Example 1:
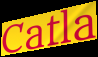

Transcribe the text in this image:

Catla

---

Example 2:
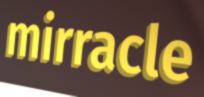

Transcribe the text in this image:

mirracle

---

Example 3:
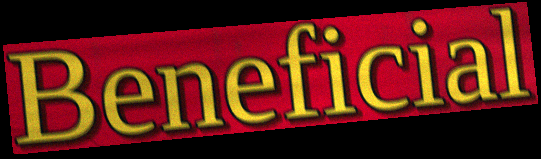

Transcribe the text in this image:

Beneficial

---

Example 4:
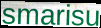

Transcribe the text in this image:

smarisu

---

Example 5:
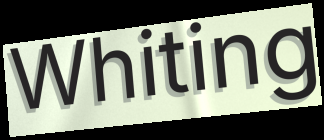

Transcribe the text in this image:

Whiting